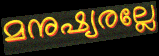
മനുഷ്യരല്ലേ